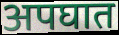
अपघात